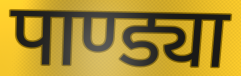
पाण्ड्या